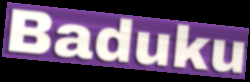
Baduku